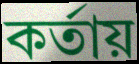
কর্তায়